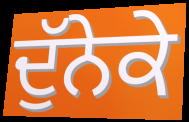
ਦੁੱਨੇਕੇ